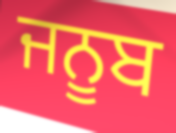
ਜਨੂਬ